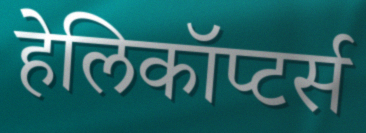
हेलिकॉप्टर्स